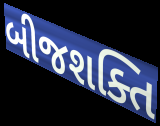
બીજશક્તિ